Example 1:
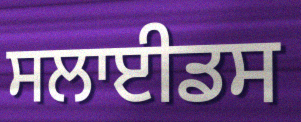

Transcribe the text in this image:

ਸਲਾਈਡਸ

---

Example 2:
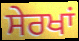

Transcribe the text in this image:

ਸੇਰਖਾਂ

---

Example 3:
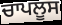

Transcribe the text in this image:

ਚਾਪਲੂਸ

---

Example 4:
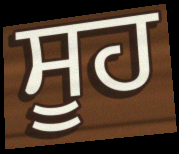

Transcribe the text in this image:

ਸੂਹ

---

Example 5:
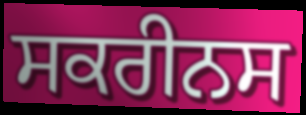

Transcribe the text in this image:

ਸਕਰੀਨਸ